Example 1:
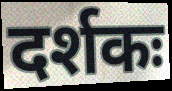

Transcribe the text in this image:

दर्शकः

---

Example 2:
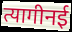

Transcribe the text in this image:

त्यागीनई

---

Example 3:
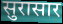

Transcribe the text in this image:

सुरासार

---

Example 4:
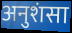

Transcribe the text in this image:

अनुशंसा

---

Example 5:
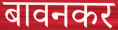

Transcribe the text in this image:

बावनकर